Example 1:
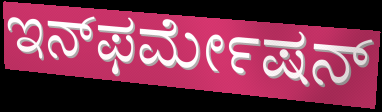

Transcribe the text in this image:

ಇನ್‌ಫರ್ಮೇಷನ್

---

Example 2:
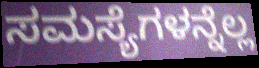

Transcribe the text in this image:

ಸಮಸ್ಯೆಗಳನ್ನೆಲ್ಲ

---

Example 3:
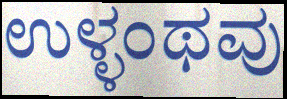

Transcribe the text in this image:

ಉಳ್ಳಂಥವು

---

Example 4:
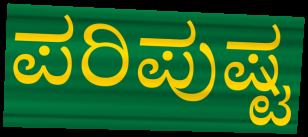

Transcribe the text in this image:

ಪರಿಪುಷ್ಟ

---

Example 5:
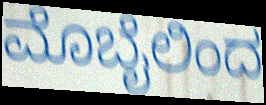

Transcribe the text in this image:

ಮೊಬೈಲಿಂದ